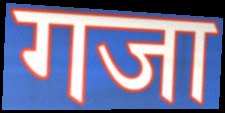
गजा